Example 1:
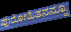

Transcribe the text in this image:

ಪುರೋಹಿತನನ್ನೂ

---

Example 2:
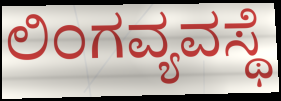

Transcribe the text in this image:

ಲಿಂಗವ್ಯವಸ್ಥೆ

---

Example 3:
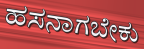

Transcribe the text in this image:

ಹಸನಾಗಬೇಕು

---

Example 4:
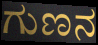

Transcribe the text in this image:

ಗುಣನ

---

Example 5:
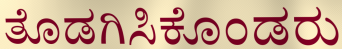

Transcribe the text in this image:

ತೊಡಗಿಸಿಕೊಂಡರು